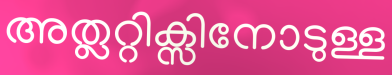
അത്ലറ്റിക്സിനോടുള്ള